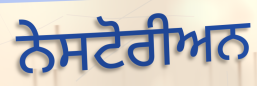
ਨੇਸਟੋਰੀਅਨ